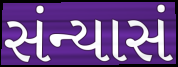
સંન્યાસં